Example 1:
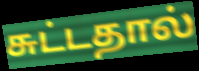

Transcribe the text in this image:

சுட்டதால்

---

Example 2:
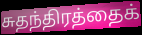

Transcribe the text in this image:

சுதந்திரத்தைக்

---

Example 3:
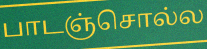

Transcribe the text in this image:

பாடஞ்சொல்ல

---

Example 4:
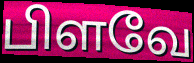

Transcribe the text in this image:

பிளவே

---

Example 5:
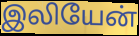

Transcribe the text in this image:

இலியேன்